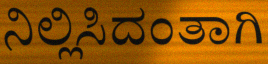
ನಿಲ್ಲಿಸಿದಂತಾಗಿ